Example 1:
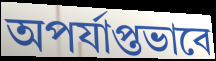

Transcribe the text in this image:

অপর্যাপ্তভাবে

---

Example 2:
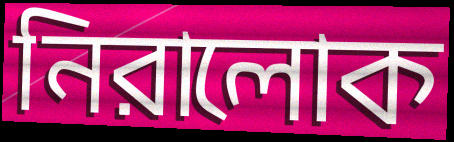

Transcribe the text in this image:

নিরালোক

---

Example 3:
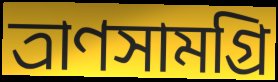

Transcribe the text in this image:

ত্রাণসামগ্রি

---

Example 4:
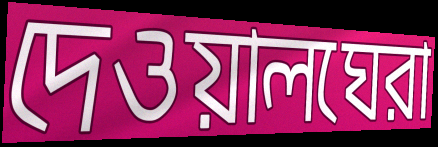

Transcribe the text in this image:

দেওয়ালঘেরা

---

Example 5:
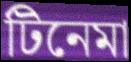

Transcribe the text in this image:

টিনেমা